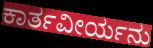
ಕಾರ್ತವೀರ್ಯನು